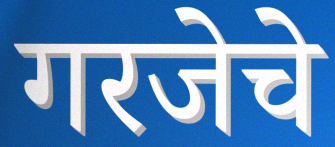
गरजेचे